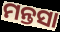
ମନ୍ତସା